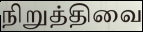
நிறுத்திவை